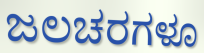
ಜಲಚರಗಳೂ